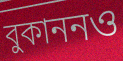
বুকাননও